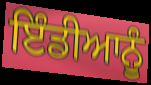
ਇੰਡੀਆਨੂੰ